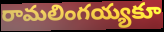
రామలింగయ్యకూ